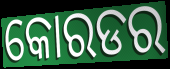
କୋରଡର